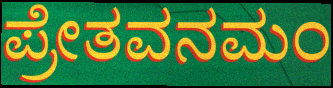
ಪ್ರೇತವನಮಂ